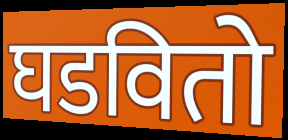
घडवितो